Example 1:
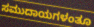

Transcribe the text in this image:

ಸಮುದಾಯಗಳಂತೂ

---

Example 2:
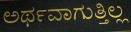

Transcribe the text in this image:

ಅರ್ಥವಾಗುತ್ತಿಲ್ಲ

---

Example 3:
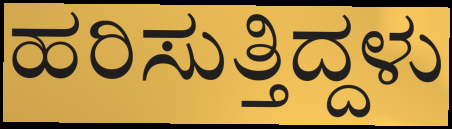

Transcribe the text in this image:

ಹರಿಸುತ್ತಿದ್ದಳು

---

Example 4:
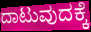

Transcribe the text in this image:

ದಾಟುವುದಕ್ಕೆ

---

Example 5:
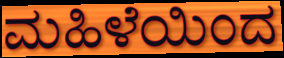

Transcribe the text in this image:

ಮಹಿಳೆಯಿಂದ